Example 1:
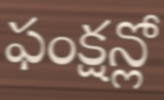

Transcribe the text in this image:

ఫంక్షన్లో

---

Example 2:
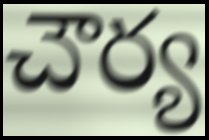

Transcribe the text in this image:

చౌర్య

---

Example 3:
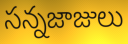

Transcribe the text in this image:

సన్నజాజులు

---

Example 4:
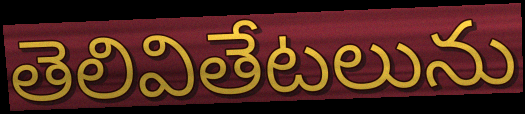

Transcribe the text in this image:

తెలివితేటలును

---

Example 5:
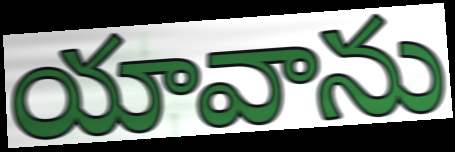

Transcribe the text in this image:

యావాను